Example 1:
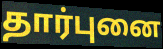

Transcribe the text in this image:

தார்புனை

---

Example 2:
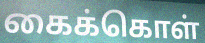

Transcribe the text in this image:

கைக்கொள்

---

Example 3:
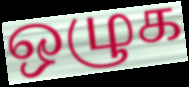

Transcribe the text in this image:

ஒழுக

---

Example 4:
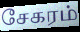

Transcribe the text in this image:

சேகரம்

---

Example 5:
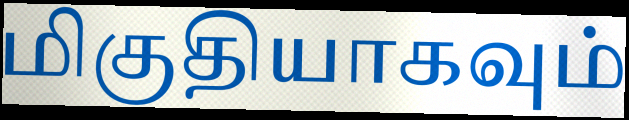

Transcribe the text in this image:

மிகுதியாகவும்